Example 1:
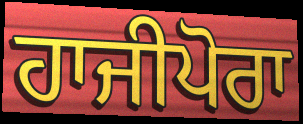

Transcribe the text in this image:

ਹਾਜੀਪੋਰਾ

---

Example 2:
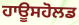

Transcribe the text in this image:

ਹਾਊਸਹੋਲਡ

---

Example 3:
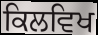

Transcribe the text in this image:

ਕਿਲਵਿਖ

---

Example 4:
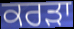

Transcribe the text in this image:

ਕਰੜਾ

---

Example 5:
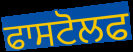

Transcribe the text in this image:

ਫਾਸਟੋਲਫ